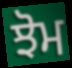
ਝੋਮ